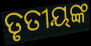
ତୃତୀୟଙ୍କ